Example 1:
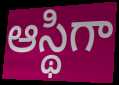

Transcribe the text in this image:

ఆస్థిగా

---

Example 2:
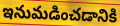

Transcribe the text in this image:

ఇనుమడించడానికి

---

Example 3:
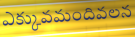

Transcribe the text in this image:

ఎక్కువమందివలన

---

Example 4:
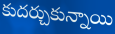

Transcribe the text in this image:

కుదర్చుకున్నాయి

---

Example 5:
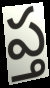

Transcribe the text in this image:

ప్త